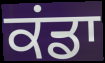
ਕਂਡਾ